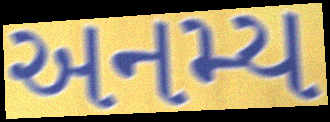
અનમ્ય